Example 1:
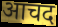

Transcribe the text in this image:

आचद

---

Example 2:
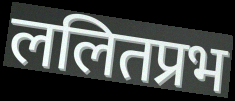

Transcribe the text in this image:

ललितप्रभ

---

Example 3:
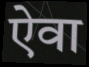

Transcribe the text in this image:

ऐवा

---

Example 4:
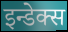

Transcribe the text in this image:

इन्डेक्स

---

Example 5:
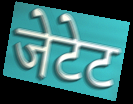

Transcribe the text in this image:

जेटेट